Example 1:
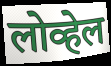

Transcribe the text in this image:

लोव्हेल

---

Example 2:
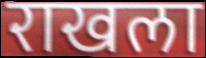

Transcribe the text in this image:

राखला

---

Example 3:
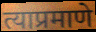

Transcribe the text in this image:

त्याप्रमाणे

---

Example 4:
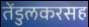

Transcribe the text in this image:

तेंडुलकरसह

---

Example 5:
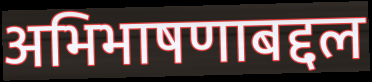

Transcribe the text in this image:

अभिभाषणाबद्दल